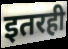
इतरही